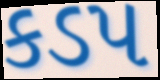
કડપ